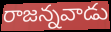
రాజన్నవాడు